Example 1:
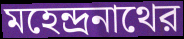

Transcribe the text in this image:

মহেন্দ্রনাথের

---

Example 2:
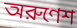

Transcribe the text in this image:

অরুণেশ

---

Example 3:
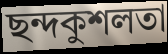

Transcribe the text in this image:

ছন্দকুশলতা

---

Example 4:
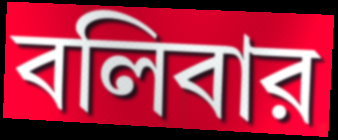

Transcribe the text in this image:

বলিবার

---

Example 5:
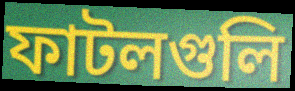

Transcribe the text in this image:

ফাটলগুলি